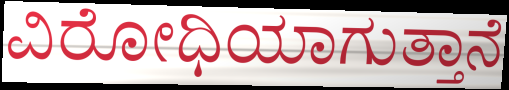
ವಿರೋಧಿಯಾಗುತ್ತಾನೆ